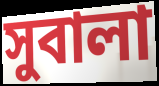
সুবালা